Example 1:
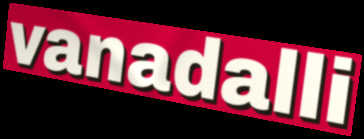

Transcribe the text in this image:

vanadalli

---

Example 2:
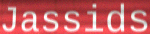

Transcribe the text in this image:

Jassids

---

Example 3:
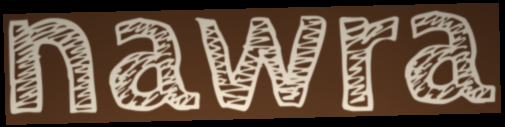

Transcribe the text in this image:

nawra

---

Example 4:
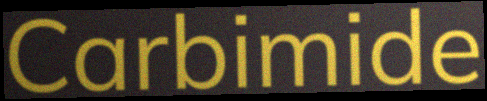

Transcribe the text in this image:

Carbimide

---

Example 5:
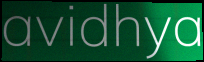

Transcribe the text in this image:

avidhya